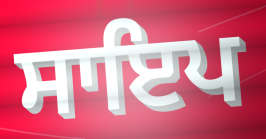
ਸਾਇਪ